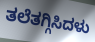
ತಲೆತಗ್ಗಿಸಿದಳು